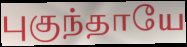
புகுந்தாயே